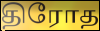
திரோத